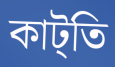
কাট্তি